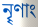
নৄণাং